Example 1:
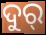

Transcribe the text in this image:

ଦୁର୍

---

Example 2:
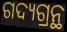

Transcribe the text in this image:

ଗଦ୍ୟଗ୍ରନ୍ଥ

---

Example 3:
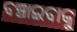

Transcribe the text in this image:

ବଞ୍ଚାଇବାକୁ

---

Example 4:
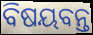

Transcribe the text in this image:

ବିଷୟବନ୍ତ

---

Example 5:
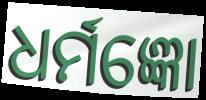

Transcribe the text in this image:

ଧର୍ମଜ୍ଞୋ